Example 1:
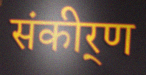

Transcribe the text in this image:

संकीर्ण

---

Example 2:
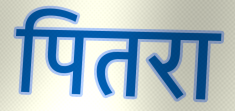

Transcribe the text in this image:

पितरा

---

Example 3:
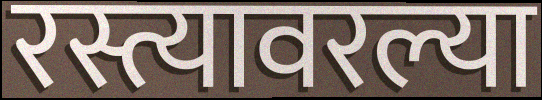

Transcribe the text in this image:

रस्त्यावरल्या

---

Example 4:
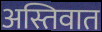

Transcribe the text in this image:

अस्तिवात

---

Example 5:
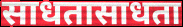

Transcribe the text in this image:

साधतासाधता